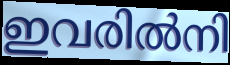
ഇവരിൽനി